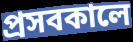
প্রসবকালে